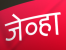
जेव्हा